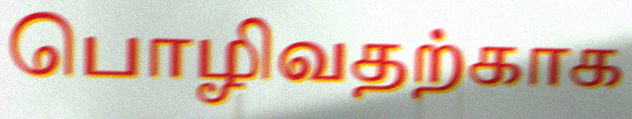
பொழிவதற்காக